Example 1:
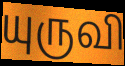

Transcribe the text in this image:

யுருவி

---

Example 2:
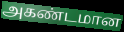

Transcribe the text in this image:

அகண்டமான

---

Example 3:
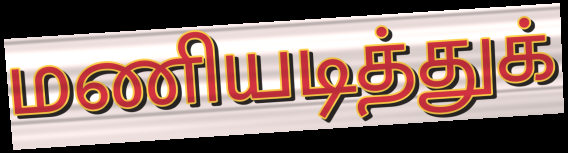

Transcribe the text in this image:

மணியடித்துக்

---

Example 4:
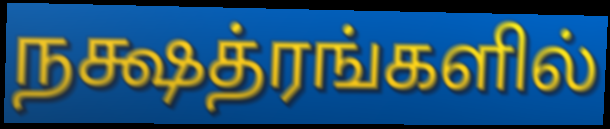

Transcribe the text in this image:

நக்ஷத்ரங்களில்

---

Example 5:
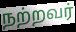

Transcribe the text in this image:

நற்றவர்